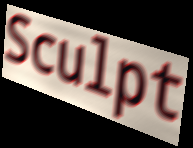
Sculpt